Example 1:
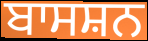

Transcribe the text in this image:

ਬਾਸਸ਼ਨ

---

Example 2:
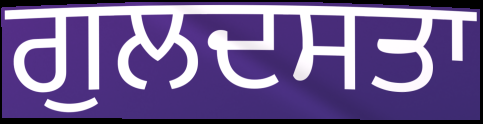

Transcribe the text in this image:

ਗੁਲਦਸਤਾ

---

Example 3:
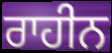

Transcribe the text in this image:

ਰਾਹੀਨ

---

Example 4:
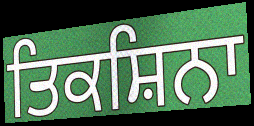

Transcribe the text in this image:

ਤਿਕਸ਼ਿਨਾ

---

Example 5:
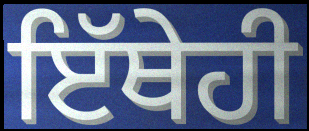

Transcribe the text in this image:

ਇੱਥੇਹੀ